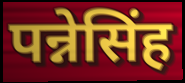
पन्नेसिंह